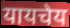
यायचेय